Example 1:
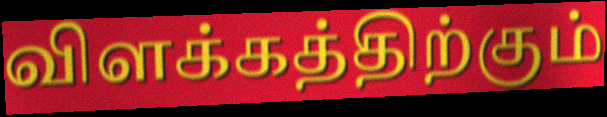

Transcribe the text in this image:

விளக்கத்திற்கும்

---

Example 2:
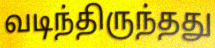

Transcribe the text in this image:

வடிந்திருந்தது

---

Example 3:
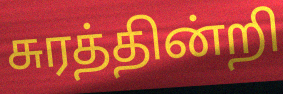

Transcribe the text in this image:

சுரத்தின்றி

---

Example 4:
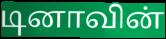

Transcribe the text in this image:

டினாவின்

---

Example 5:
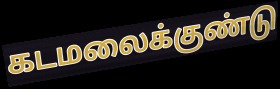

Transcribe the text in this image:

கடமலைக்குண்டு